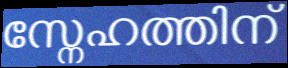
സ്നേഹത്തിന്